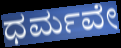
ಧರ್ಮವೇ